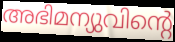
അഭിമന്യുവിന്റെ